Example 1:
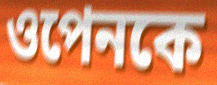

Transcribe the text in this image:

ওপেনকে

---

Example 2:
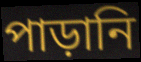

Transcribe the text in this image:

পাড়ানি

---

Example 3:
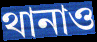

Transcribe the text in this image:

থানাও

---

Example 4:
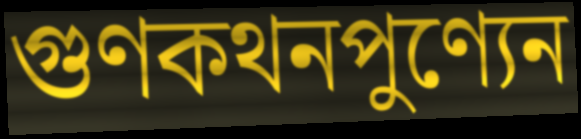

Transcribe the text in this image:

গুণকথনপুণ্যেন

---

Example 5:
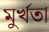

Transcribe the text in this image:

মুর্খতা